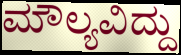
ಮೌಲ್ಯವಿದ್ದು